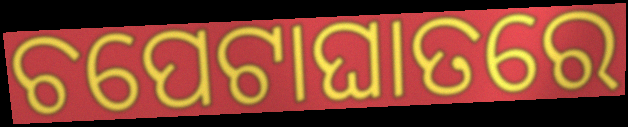
ଚପେଟାଘାତରେ